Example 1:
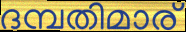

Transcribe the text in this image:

ദമ്പതിമാര്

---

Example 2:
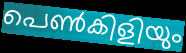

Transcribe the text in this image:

പെൺകിളിയും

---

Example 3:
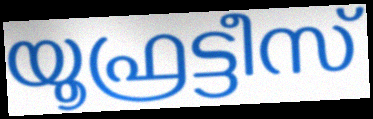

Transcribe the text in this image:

യൂഫ്രട്ടീസ്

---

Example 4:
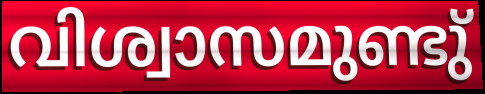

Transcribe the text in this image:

വിശ്വാസമുണ്ടു്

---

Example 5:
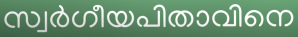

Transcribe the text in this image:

സ്വർഗീയപിതാവിനെ